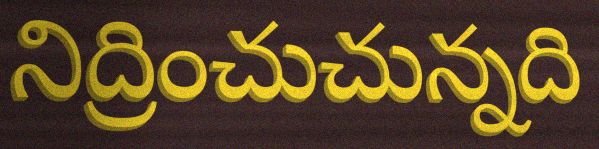
నిద్రించుచున్నది